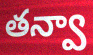
తన్వా